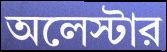
অলেস্টার